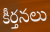
కీర్తనలు